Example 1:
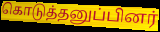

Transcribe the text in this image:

கொடுத்தனுப்பினர்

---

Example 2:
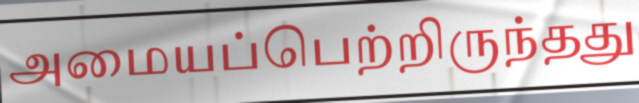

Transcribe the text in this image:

அமையப்பெற்றிருந்தது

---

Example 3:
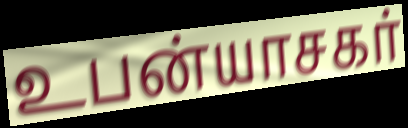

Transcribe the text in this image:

உபன்யாசகர்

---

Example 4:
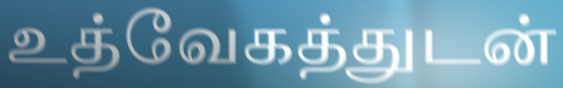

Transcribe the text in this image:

உத்வேகத்துடன்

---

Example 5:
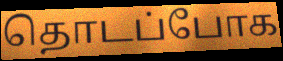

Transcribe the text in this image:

தொடப்போக